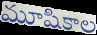
మూషికాల